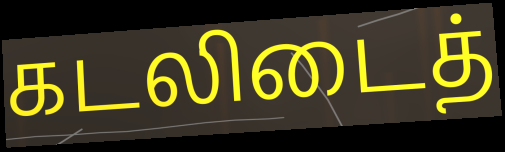
கடலிடைத்